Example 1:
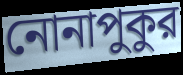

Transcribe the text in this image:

নোনাপুকুর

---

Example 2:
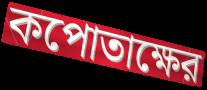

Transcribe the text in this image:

কপোতাক্ষের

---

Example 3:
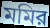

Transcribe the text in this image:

মমির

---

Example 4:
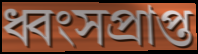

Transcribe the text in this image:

ধ্বংসপ্রাপ্ত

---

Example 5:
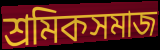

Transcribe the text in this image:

শ্রমিকসমাজ